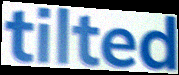
tilted